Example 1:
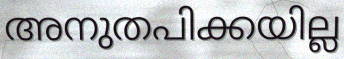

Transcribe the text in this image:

അനുതപിക്കയില്ല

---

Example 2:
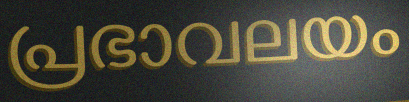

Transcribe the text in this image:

പ്രഭാവലയം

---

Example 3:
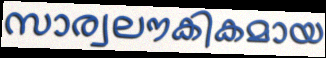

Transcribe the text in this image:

സാര്വലൗകികമായ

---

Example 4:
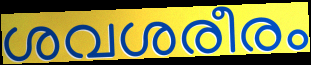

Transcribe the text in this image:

ശവശരീരം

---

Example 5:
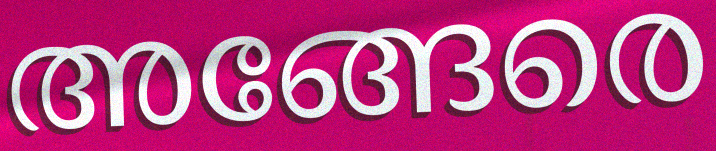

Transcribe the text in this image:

അങ്ങേരെ